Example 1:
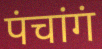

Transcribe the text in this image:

पंचांगं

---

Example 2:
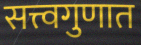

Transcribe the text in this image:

सत्त्वगुणात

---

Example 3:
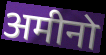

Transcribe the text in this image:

अमीनो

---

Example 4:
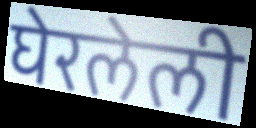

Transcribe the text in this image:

घेरलेली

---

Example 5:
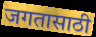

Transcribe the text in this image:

जगतासाठी